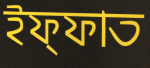
ইফ্ফাত